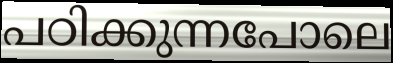
പഠിക്കുന്നപോലെ